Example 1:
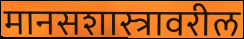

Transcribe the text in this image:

मानसशास्त्रावरील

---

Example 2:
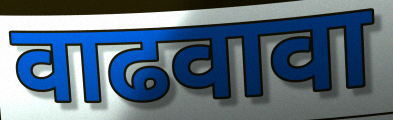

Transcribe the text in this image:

वाढवावा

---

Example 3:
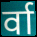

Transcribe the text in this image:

र्वा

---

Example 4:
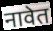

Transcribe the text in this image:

नावेत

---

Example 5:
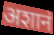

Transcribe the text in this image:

अशानं